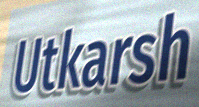
Utkarsh